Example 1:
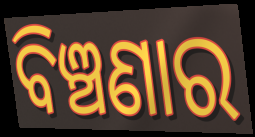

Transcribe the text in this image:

ବିଞ୍ଚଣାର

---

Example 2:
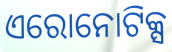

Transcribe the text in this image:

ଏରୋନୋଟିକ୍ସ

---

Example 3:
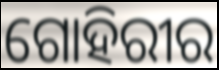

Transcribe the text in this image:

ଗୋହିରୀର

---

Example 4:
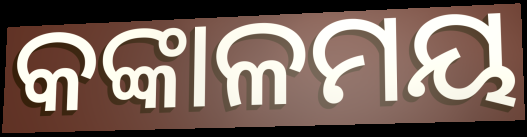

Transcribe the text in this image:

କଙ୍କାଳମୟ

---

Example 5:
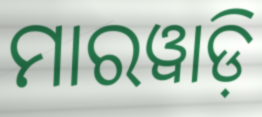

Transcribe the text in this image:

ମାରୱାଡ଼ି